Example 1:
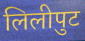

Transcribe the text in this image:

लिलीपुट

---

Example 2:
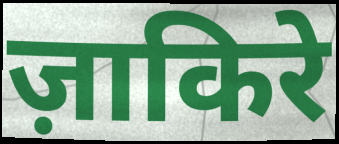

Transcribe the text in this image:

ज़ाकिरे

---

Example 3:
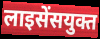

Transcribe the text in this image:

लाइसेंसयुक्त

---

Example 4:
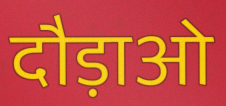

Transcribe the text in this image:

दौड़ाओ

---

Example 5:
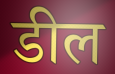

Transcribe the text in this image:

डील